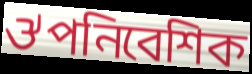
ঔপনিবেশিক